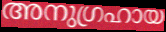
അനുഗ്രഹായ